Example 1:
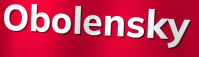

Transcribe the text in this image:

Obolensky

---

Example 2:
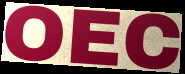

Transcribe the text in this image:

OEC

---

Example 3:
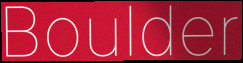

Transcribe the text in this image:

Boulder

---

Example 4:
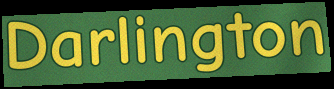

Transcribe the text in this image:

Darlington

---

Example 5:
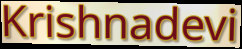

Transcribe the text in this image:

Krishnadevi